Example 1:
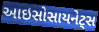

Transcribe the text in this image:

આઇસોસાયનેટ્સ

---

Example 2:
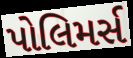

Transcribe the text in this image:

પોલિમર્સ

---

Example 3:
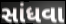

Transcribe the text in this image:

સાંધવા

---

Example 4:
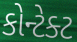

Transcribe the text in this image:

કોન્ટેક્ટ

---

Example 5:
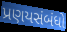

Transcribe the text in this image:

પ્રણયસંબંધો